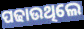
ପଢାଉଥିଲେ